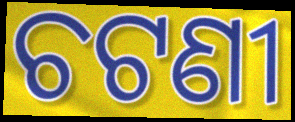
ଚଟଣୀ